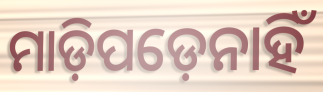
ମାଡ଼ିପଡ଼େନାହିଁ